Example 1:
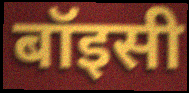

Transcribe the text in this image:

बॉइसी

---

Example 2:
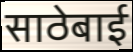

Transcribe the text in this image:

साठेबाई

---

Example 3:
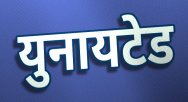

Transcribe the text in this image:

युनायटेड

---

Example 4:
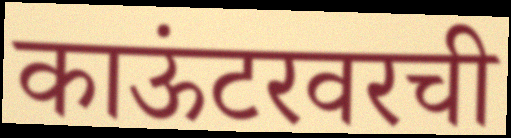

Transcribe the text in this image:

काऊंटरवरची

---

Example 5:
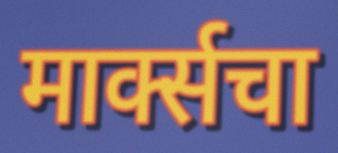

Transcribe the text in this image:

मार्क्सचा